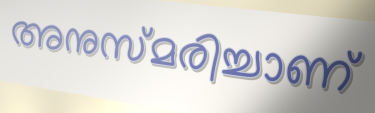
അനുസ്മരിച്ചാണ്